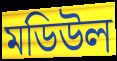
মডিউল